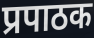
प्रपाठक